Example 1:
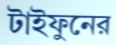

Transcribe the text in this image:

টাইফুনের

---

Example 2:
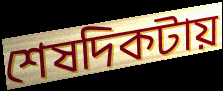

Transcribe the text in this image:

শেষদিকটায়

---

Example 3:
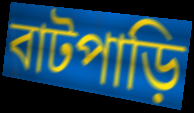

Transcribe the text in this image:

বাটপাড়ি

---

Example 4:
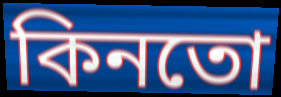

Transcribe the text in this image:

কিনতো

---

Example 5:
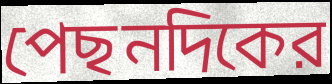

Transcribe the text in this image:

পেছনদিকের